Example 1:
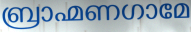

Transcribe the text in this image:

ബ്രാഹ്മണഗാമേ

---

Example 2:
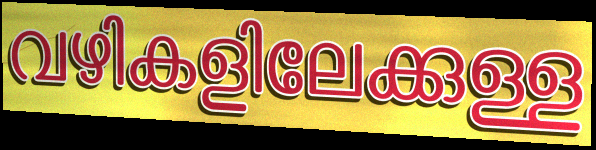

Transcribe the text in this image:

വഴികളിലേക്കുള്ള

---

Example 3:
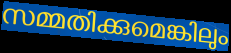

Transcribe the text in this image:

സമ്മതിക്കുമെങ്കിലും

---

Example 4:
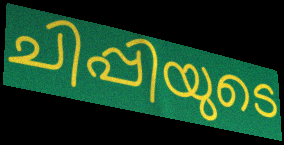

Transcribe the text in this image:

ചിപ്പിയുടെ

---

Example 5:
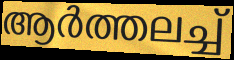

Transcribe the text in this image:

ആർത്തലച്ച്